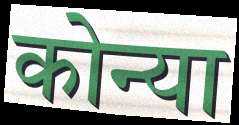
कोन्या